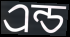
এন্ড